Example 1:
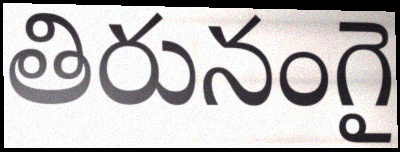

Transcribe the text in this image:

తిరునంగై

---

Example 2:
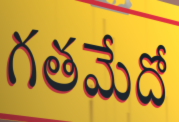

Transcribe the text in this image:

గతమేదో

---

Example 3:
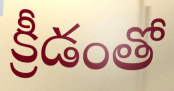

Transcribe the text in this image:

క్రీడంతో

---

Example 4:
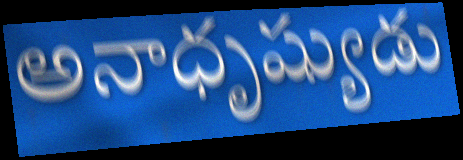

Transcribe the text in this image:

అనాధృష్యుడు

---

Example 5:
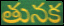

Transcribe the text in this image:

తునక